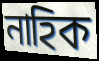
নাহিক